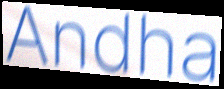
Andha